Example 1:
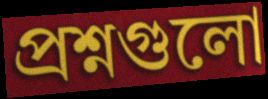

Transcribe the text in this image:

প্রশ্নগুলো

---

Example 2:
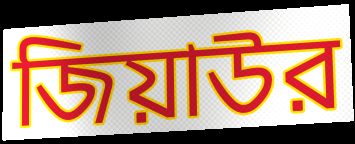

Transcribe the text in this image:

জিয়াউর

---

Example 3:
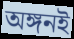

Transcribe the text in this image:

অঙ্গনই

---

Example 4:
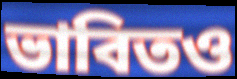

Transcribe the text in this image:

ভাবিতও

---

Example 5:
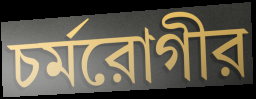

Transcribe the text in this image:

চর্মরোগীর